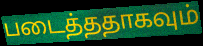
படைத்ததாகவும்